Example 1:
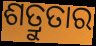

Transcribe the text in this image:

ଶତ୍ରୁତାର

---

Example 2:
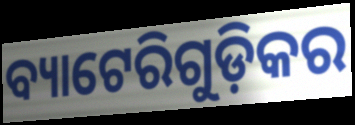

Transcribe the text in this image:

ବ୍ୟାଟେରିଗୁଡ଼ିକର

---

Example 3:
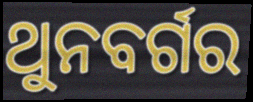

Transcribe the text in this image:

ଥୁନବର୍ଗର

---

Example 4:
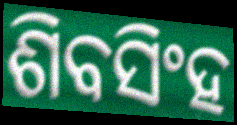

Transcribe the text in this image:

ଶିବସିଂହ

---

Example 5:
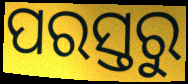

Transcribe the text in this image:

ପରସ୍ତରୁ